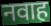
नवाह